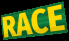
RACE